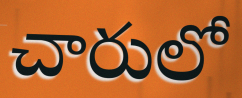
చారులో